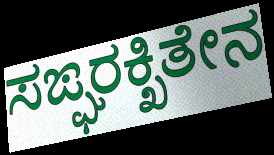
ಸಙ್ಘರಕ್ಖಿತೇನ